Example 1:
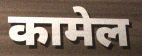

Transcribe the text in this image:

कामेल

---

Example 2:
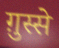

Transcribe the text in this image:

ग़ुस्से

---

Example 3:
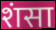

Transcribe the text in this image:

शंसा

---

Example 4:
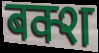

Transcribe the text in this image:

बक्श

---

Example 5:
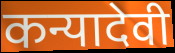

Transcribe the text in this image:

कन्यादेवी